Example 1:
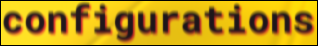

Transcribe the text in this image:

configurations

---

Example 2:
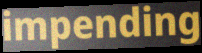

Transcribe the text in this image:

impending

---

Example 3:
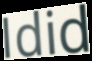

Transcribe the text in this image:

Idid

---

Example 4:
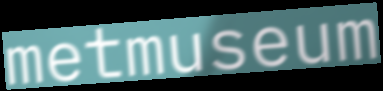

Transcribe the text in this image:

metmuseum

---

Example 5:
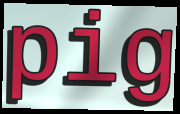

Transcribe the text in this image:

pig